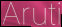
Aruti